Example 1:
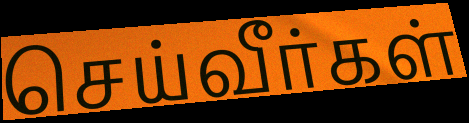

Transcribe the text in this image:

செய்வீர்கள்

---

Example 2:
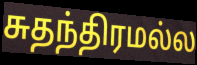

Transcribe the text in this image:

சுதந்திரமல்ல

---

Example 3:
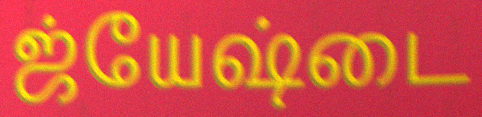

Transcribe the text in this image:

ஜ்யேஷ்டை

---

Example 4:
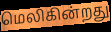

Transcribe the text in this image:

மெலிகின்றது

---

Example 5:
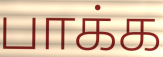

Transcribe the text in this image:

பாக்க